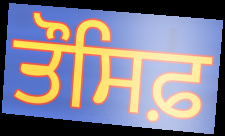
ਤੌਸਿਫ਼